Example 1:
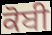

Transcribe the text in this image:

ਕੋਬੀ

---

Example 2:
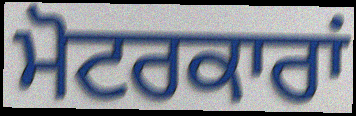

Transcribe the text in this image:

ਮੋਟਰਕਾਰਾਂ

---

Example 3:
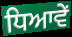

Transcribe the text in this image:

ਧਿਆਵੇਂ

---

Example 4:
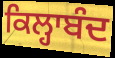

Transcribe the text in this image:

ਕਿਲ੍ਹਾਬੰਦ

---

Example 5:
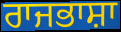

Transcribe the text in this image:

ਰਾਜਭਾਸ਼ਾ